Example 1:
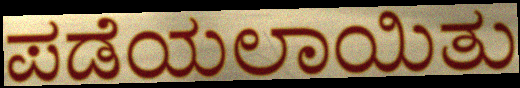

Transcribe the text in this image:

ಪಡೆಯಲಾಯಿತು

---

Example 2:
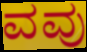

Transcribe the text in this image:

ವವು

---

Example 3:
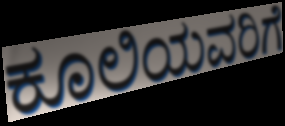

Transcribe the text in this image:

ಕೂಲಿಯವರಿಗೆ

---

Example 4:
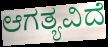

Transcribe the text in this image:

ಆಗತ್ಯವಿದೆ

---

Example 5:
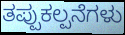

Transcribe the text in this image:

ತಪ್ಪುಕಲ್ಪನೆಗಳು